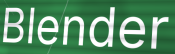
Blender